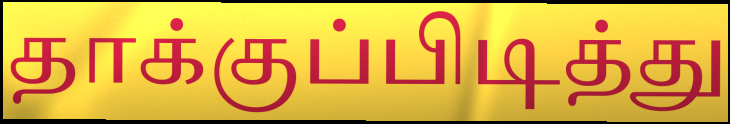
தாக்குப்பிடித்து